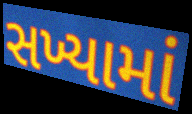
સખ્યામાં